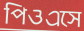
পিওএসে